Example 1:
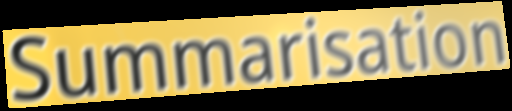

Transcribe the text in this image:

Summarisation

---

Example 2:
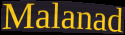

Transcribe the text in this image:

Malanad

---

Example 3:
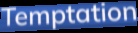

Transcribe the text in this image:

Temptation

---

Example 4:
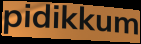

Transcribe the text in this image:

pidikkum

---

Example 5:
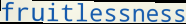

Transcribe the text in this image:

fruitlessness